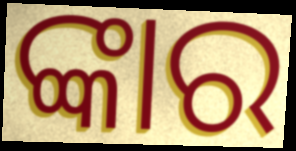
ଙ୍କାର